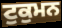
ਟੁਕੁਮਨ